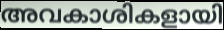
അവകാശികളായി